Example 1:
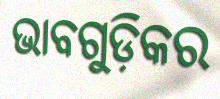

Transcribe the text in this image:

ଭାବଗୁଡ଼ିକର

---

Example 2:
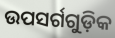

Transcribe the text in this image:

ଉପସର୍ଗଗୁଡ଼ିକ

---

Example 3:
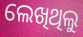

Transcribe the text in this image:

ଲେଖିଥିଲୁ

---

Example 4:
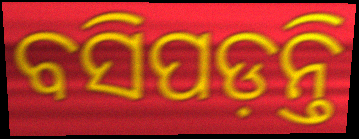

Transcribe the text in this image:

ବସିପଡ଼ନ୍ତି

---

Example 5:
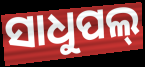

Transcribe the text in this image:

ସାଧୁପଲ୍